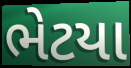
ભેટયા